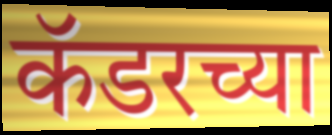
कॅडरच्या